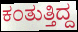
ಕಂತುತ್ತಿದ್ದ